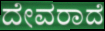
ದೇವರಾದೆ